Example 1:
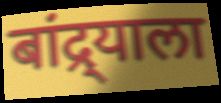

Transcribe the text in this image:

बांद्र्याला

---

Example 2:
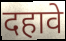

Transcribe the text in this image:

दहावे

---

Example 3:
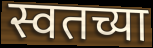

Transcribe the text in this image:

स्वतच्या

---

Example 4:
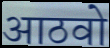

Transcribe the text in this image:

आठवो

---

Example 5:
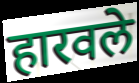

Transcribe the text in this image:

हारवले